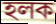
হলক